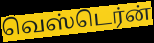
வெஸ்டெர்ன்